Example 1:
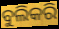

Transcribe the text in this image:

ବୁଲିକରି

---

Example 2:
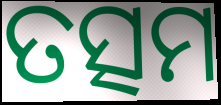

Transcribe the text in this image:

ତତ୍ସମ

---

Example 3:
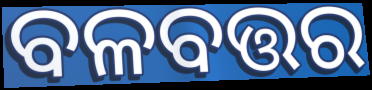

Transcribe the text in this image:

ବଳବତ୍ତର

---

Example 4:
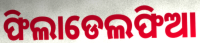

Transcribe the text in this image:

ଫିଲାଡେଲଫିଆ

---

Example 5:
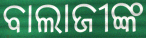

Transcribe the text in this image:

ବାଲାଜୀଙ୍କ